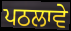
ਪਠਲਾਵੇ